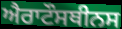
ਐਰਾਟੌਸਥੀਨਸ